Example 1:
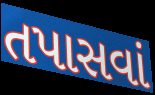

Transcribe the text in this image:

તપાસવાં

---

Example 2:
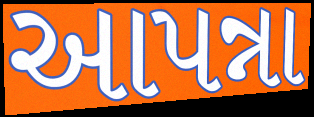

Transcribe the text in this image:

આપન્ના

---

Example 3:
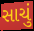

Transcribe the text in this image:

સાચું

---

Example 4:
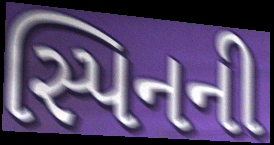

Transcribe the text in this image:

સ્પિનની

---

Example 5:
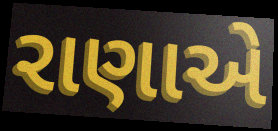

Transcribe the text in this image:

રાણાએ